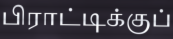
பிராட்டிக்குப்